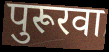
पुरूरवा